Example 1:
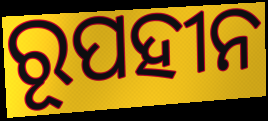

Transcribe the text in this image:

ରୂପହୀନ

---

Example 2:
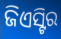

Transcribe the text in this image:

ଜିଏସ୍ଟିର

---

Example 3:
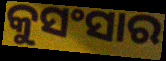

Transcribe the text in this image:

କୁସଂସାର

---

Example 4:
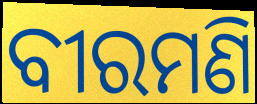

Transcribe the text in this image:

ବୀରମଣି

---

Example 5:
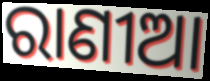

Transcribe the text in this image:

ରାଣୀଆ